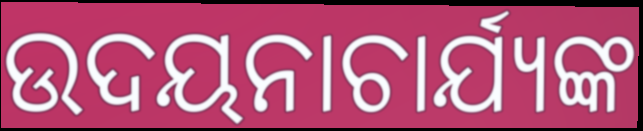
ଉଦୟନାଚାର୍ଯ୍ୟଙ୍କ